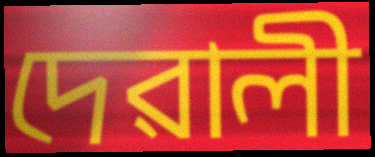
দেৱালী